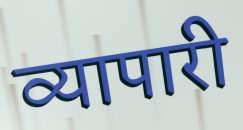
व्यापारी